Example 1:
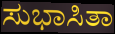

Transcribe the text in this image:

ಸುಭಾಸಿತಾ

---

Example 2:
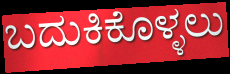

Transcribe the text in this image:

ಬದುಕಿಕೊಳ್ಳಲು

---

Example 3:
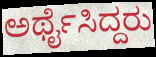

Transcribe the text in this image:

ಅರ್ಥೈಸಿದ್ದರು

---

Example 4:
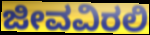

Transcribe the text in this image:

ಜೀವವಿರಲಿ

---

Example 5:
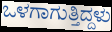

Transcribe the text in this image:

ಒಳಗಾಗುತ್ತಿದ್ದಳು